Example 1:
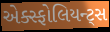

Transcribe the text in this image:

એક્સ્ફોલિયન્ટ્સ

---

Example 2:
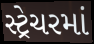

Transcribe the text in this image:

સ્ટ્રેચરમાં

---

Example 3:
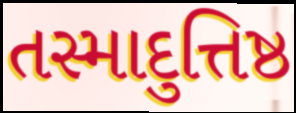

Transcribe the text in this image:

તસ્માદુત્તિષ્ઠ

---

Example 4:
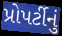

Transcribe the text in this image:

પ્રોપર્ટીનું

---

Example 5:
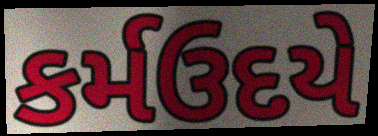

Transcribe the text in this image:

કર્મઉદયે